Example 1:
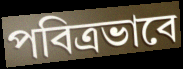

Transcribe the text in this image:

পবিত্রভাবে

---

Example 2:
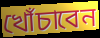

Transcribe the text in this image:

খোঁচাবেন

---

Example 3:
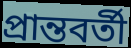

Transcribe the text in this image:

প্রান্তবর্তী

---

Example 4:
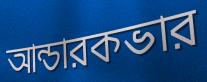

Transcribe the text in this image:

আন্ডারকভার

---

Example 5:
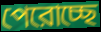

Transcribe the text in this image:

পেরোচ্ছে